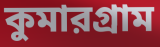
কুমারগ্রাম